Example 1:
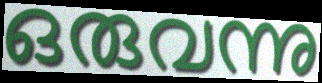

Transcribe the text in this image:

ഒരുവന്നു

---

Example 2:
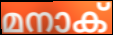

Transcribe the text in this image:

മനാക്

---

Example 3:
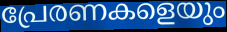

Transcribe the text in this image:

പ്രേരണകളെയും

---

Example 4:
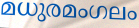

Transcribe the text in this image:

മധുരമംഗലം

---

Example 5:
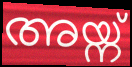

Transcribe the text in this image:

അയ്ന്